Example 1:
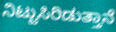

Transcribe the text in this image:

ನಿಟ್ಟುಸಿರಿಡುತ್ತಾನೆ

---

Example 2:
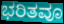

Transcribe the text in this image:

ಭರಿತವೂ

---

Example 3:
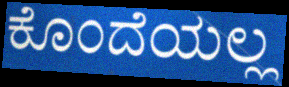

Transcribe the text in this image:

ಕೊಂದೆಯಲ್ಲ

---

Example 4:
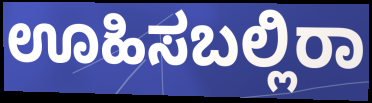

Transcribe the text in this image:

ಊಹಿಸಬಲ್ಲಿರಾ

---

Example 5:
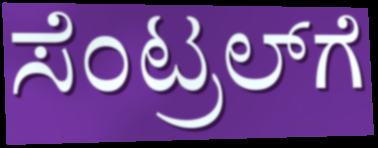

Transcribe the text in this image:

ಸೆಂಟ್ರಲ್‌ಗೆ